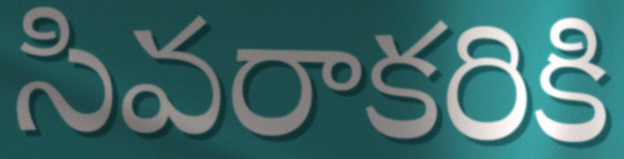
సివరాకరికి